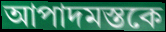
আপাদমস্তকে